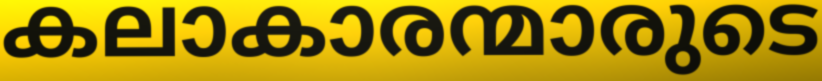
കലാകാരന്മാരുടെ